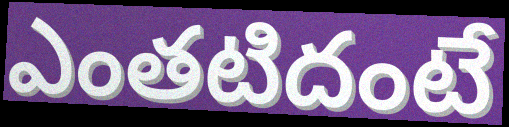
ఎంతటిదంటే